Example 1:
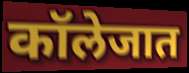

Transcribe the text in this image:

कॉलेजात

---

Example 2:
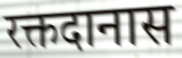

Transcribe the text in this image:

रक्तदानास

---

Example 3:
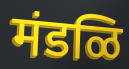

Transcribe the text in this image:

मंडळि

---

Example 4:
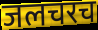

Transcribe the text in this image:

जलचरच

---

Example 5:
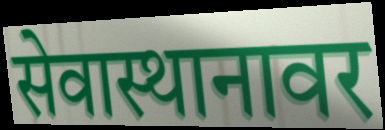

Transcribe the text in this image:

सेवास्थानावर